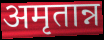
अमृतान्न